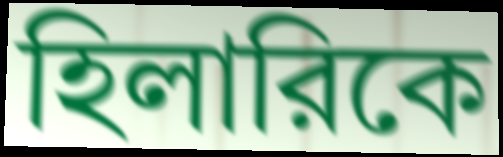
হিলারিকে